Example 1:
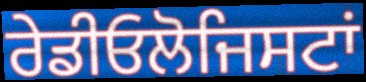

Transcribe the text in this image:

ਰੇਡੀਓਲੋਜਿਸਟਾਂ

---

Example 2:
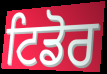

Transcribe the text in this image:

ਟਿਡੋਰ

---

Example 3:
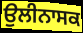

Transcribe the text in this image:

ਉਲੀਨਾਸਕ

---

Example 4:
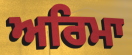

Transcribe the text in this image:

ਅਰਿਮਾ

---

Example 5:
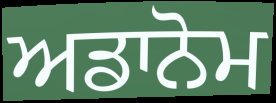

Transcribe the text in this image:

ਅਡਾਨੋਮ